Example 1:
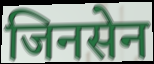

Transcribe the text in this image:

जिनसेन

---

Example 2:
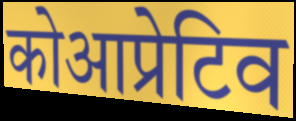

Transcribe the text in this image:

कोआप्रेटिव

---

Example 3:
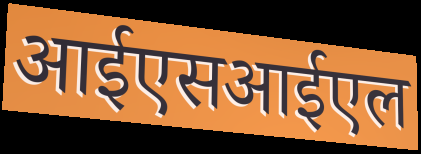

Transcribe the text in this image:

आईएसआईएल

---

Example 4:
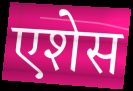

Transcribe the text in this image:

एशेस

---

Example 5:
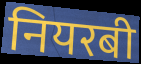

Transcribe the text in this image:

नियरबी